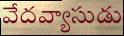
వేదవ్యాసుడు